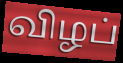
விழப்